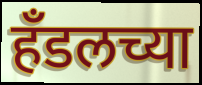
हँडलच्या